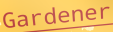
Gardener